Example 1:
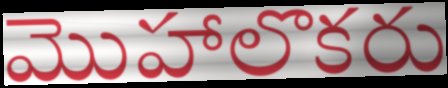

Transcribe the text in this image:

మొహాలొకరు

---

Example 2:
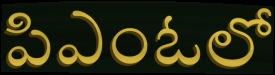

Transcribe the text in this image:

పిఎంఓలో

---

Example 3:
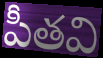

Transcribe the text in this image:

పీతవి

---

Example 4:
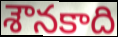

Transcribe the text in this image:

శౌనకాది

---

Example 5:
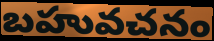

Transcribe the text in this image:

బహువచనం